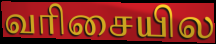
வரிசையில